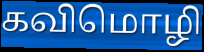
கவிமொழி